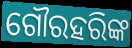
ଗୌରହରିଙ୍କ